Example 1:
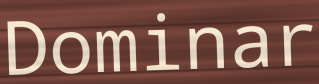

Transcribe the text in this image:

Dominar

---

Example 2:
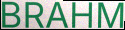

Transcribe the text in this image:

BRAHM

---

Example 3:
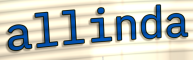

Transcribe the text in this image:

allinda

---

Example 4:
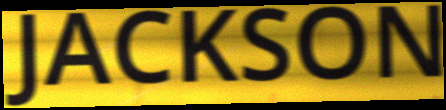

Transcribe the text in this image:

JACKSON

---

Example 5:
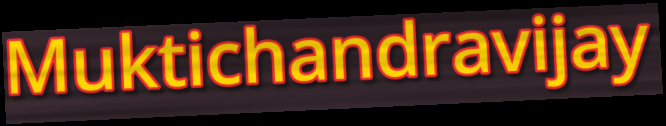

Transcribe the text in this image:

Muktichandravijay